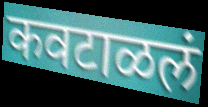
कवटाळलं